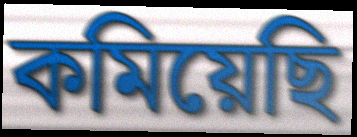
কমিয়েছি